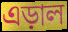
এড়াল